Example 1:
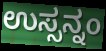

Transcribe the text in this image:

ಉಸ್ಸನ್ನಂ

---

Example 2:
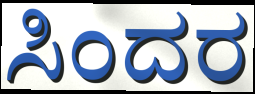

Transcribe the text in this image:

ಸಿಂದರ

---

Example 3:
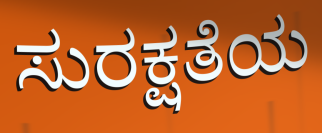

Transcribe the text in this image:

ಸುರಕ್ಷತೆಯ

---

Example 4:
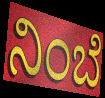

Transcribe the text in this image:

ನಿಂಬೆ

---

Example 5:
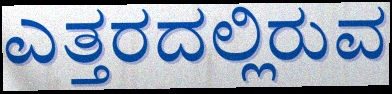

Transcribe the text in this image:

ಎತ್ತರದಲ್ಲಿರುವ